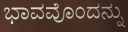
ಭಾವವೊಂದನ್ನು